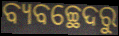
ବ୍ୟବଚ୍ଛେଦରୁ